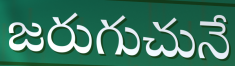
జరుగుచునే